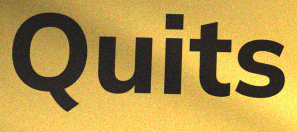
Quits